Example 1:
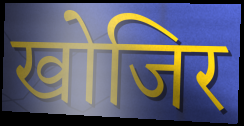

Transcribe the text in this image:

खोजिर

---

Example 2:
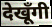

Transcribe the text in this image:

देखूँगी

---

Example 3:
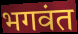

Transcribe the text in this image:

भगवंत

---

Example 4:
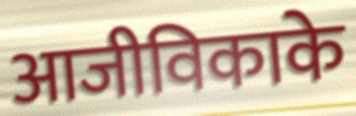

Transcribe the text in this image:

आजीविकाके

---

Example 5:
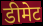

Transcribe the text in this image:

डीमेट